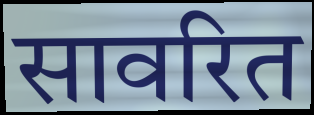
सावरित